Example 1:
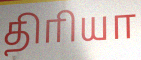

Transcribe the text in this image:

திரியா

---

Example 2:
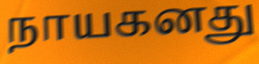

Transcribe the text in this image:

நாயகனது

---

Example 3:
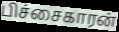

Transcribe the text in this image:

பிச்சைகாரன்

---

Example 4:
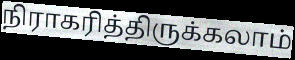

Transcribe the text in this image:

நிராகரித்திருக்கலாம்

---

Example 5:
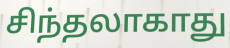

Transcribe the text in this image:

சிந்தலாகாது